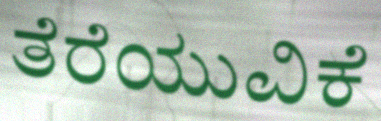
ತೆರೆಯುವಿಕೆ